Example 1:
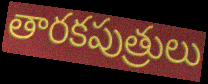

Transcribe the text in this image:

తారకపుత్రులు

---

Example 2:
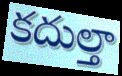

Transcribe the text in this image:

కదుల్తా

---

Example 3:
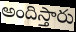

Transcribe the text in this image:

అందిస్తారు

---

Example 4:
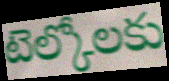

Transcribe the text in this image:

టెల్కోలకు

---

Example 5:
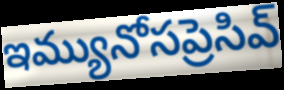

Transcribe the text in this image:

ఇమ్యునోసప్రెసివ్